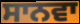
ਸਾਨਵਾ